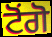
ਟੋਂਗੋ